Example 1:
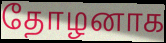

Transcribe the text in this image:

தோழனாக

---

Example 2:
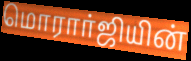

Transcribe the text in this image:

மொரார்ஜியின்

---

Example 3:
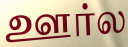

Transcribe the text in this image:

ஊர்ல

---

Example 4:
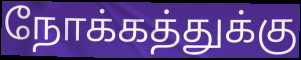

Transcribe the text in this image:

நோக்கத்துக்கு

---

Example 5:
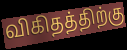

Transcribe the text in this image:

விகிதத்திற்கு